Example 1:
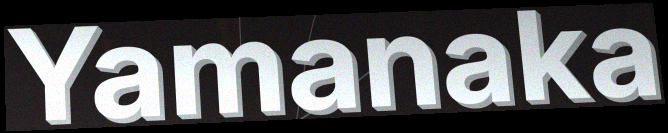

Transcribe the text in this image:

Yamanaka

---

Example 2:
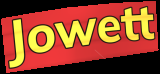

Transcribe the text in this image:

Jowett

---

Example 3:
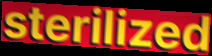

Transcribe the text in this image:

sterilized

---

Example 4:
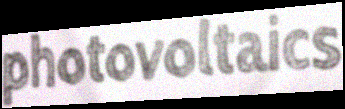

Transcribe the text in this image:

photovoltaics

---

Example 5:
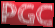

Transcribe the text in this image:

PGC